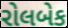
રોલબેક